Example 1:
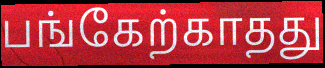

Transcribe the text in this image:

பங்கேற்காதது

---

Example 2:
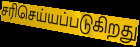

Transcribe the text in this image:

சரிசெய்யப்படுகிறது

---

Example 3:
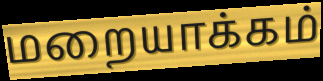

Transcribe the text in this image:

மறையாக்கம்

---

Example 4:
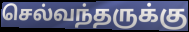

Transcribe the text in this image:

செல்வந்தருக்கு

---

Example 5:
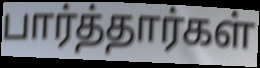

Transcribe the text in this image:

பார்த்தார்கள்